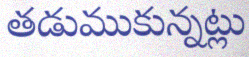
తడుముకున్నట్లు